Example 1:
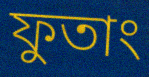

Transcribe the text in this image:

ফুতাং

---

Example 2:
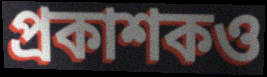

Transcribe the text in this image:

প্রকাশকও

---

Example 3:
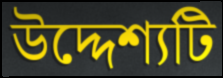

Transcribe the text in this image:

উদ্দেশ্যটি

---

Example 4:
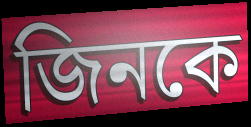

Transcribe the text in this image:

জিনকে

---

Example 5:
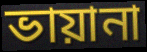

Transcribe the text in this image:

ভায়ানা